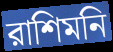
রাশিমনি